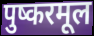
पुष्करमूल